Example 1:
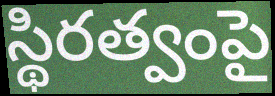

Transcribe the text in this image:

స్థిరత్వంపై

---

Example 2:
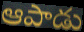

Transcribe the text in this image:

ఆపాడు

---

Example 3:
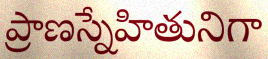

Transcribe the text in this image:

ప్రాణస్నేహితునిగా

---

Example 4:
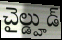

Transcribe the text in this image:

చైల్డ్హుడ్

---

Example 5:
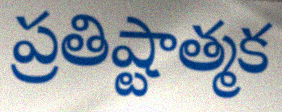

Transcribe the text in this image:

ప్రతిష్టాత్మక